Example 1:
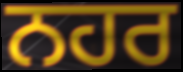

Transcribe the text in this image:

ਨਹਰ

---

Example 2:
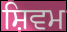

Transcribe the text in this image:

ਸ਼ਿਵਮ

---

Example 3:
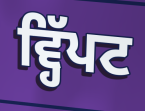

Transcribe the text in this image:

ਵ੍ਹਿੱਪਟ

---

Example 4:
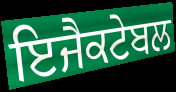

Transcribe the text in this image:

ਇਜੈਕਟੇਬਲ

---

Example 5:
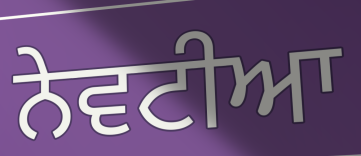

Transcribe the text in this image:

ਨੇਵਟੀਆ